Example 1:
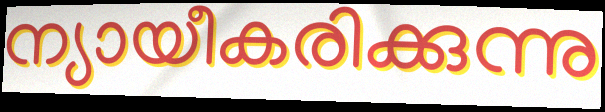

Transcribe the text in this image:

ന്യായീകരിക്കുന്നു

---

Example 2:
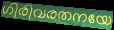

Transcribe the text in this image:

ഗിരിവരതനയേ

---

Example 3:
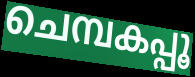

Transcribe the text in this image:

ചെമ്പകപ്പൂ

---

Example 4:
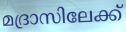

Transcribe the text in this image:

മദ്രാസിലേക്ക്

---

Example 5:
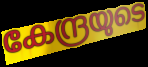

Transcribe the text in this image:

കേന്ദ്രയുടെ